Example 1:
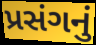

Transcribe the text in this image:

પ્રસંગનું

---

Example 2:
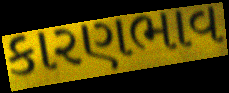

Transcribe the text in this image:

કારણભાવ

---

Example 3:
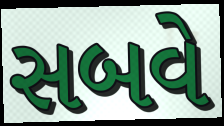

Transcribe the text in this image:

સબવે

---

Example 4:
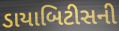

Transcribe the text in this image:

ડાયાબિટીસની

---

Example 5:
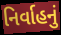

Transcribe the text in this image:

નિર્વાહનું